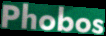
Phobos